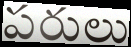
పరులు